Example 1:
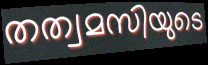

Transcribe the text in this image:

തത്വമസിയുടെ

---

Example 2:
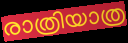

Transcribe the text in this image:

രാത്രിയാത്ര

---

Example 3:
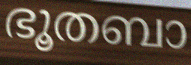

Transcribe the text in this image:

ഭൂതബാ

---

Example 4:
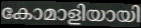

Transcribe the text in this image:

കോമാളിയായി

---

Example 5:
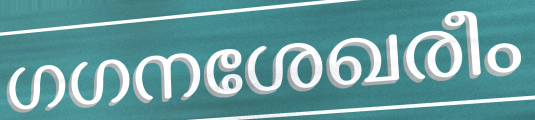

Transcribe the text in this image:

ഗഗനശേഖരീം